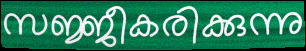
സജ്ജീകരിക്കുന്നു